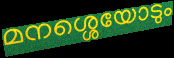
മനശ്ശെയോടും